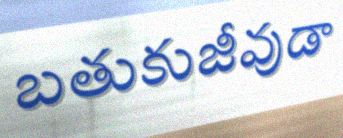
బతుకుజీవుడా